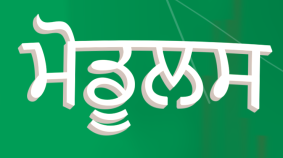
ਮੋਡੂਲਸ